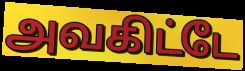
அவகிட்டே